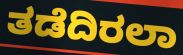
ತಡೆದಿರಲಾ